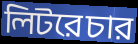
লিটরেচার